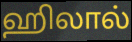
ஹிலால்